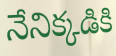
నేనిక్కడికి